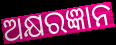
ଅକ୍ଷରଜ୍ଞାନ